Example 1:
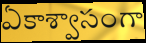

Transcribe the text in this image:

ఏకాశ్వాసంగా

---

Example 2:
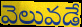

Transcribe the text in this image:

వెలువడే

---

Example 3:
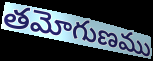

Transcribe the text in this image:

తమోగుణము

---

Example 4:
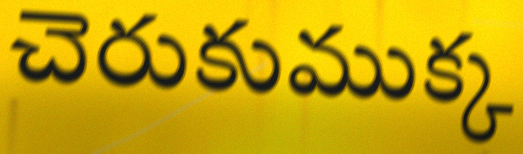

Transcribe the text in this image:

చెరుకుముక్క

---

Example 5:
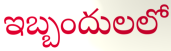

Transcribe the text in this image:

ఇబ్బందులలో